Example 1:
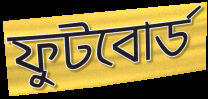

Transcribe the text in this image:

ফুটবোর্ড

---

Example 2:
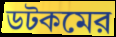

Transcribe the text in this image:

ডটকমের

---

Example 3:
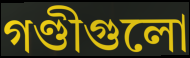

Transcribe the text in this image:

গণ্ডীগুলো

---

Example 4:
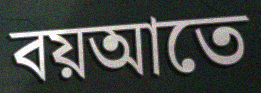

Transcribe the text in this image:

বয়আতে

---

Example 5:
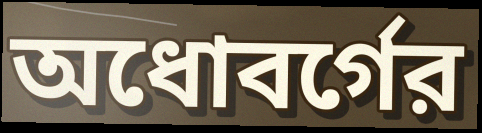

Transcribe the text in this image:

অধোবর্গের